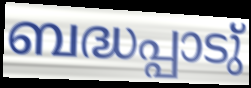
ബദ്ധപ്പാടു്